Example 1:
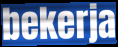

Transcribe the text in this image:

bekerja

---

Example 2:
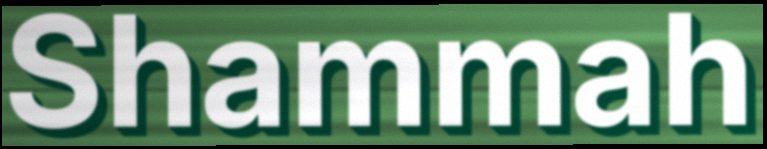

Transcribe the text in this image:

Shammah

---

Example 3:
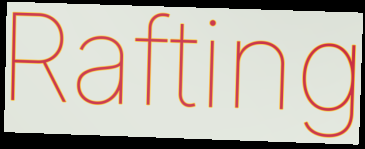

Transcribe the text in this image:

Rafting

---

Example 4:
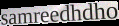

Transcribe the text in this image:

samreedhdho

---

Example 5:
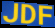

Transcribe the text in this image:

JDF